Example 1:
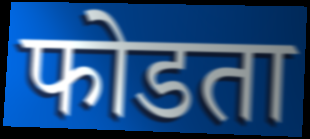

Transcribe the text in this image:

फोडता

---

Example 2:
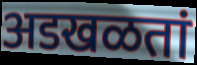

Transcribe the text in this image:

अडखळतां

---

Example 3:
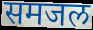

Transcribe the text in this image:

समजल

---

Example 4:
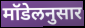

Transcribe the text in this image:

मॉडेलनुसार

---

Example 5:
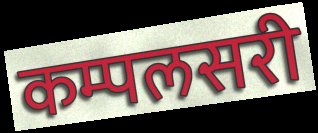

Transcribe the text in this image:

कम्पलसरी